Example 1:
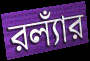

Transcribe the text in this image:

রল্যাঁর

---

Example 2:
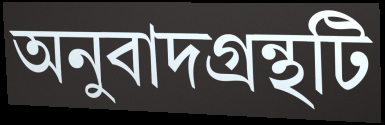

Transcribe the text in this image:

অনুবাদগ্রন্থটি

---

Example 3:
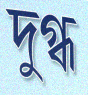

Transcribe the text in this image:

দুগ্ধ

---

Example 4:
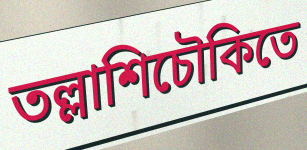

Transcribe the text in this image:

তল্লাশিচৌকিতে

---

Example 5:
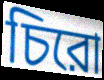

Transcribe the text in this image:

চিরো